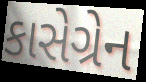
કાસેગ્રેન